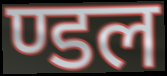
ण्डल